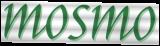
mosmo